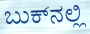
ಬುಕ್‌ನಲ್ಲಿ